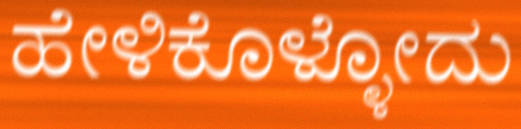
ಹೇಳಿಕೊಳ್ಳೋದು